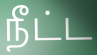
நீட்ட